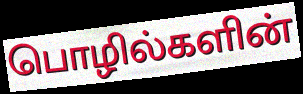
பொழில்களின்